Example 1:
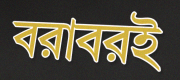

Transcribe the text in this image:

বরাবরই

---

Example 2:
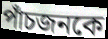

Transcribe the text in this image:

পাঁচজনকে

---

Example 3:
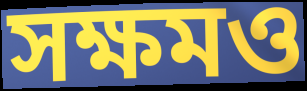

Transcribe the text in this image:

সক্ষমও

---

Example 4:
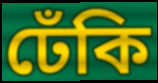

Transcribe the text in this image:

ঢেঁকি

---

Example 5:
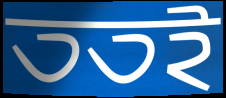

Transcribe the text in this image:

ততই